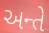
અન્તે